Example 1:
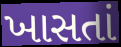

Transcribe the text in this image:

ખાસતાં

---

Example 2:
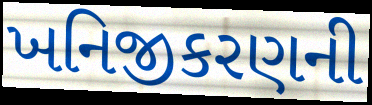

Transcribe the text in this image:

ખનિજીકરણની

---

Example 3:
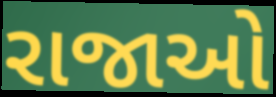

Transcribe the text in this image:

રાજાઓ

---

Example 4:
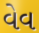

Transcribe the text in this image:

વેવ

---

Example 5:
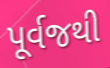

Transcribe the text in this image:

પૂર્વજથી